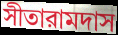
সীতারামদাস